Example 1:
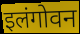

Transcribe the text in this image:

इलंगोवन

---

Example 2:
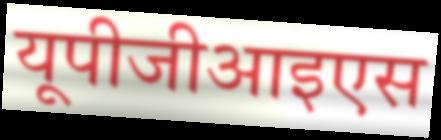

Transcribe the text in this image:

यूपीजीआइएस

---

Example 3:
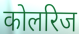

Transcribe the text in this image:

कोलरिज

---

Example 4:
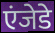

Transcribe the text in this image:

एंजेडे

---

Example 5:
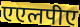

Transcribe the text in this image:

एएलपीए